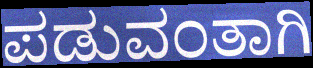
ಪಡುವಂತಾಗಿ